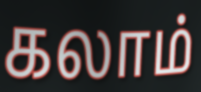
கலாம்